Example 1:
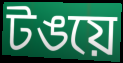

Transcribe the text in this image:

টঙয়ে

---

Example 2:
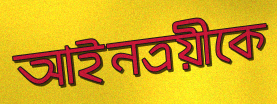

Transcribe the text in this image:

আইনত্রয়ীকে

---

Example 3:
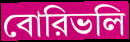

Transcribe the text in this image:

বোরিভলি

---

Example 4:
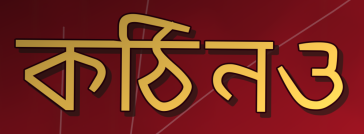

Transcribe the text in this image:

কঠিনও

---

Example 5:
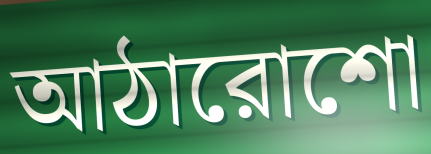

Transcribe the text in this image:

আঠারোশো